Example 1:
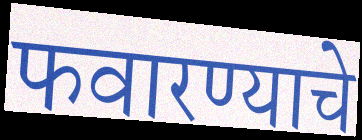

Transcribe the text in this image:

फवारण्याचे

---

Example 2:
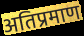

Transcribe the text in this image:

अतिप्रमाण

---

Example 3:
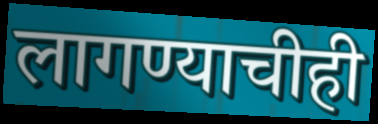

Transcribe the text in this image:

लागण्याचीही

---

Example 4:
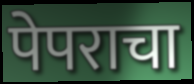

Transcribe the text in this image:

पेपराचा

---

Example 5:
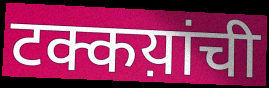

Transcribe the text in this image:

टक्कय़ांची